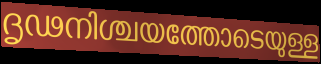
ദൃഢനിശ്ചയത്തോടെയുള്ള